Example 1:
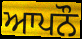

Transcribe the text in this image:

ਆਪਨੌ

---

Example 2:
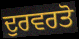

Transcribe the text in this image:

ਦੁਰਵਰਤੋ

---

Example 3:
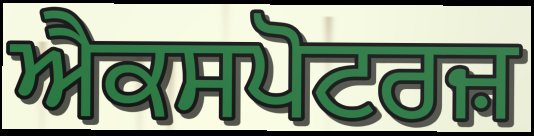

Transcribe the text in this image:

ਐਕਸਪੋਟਰਜ਼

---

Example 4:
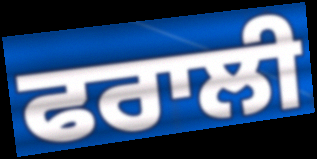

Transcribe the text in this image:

ਫਰਾਲੀ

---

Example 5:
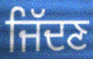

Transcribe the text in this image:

ਜਿੱਦਣ